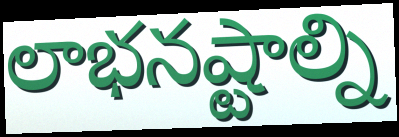
లాభనష్టాల్ని